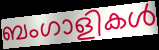
ബംഗാളികൾ